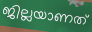
ജില്ലയാണത്